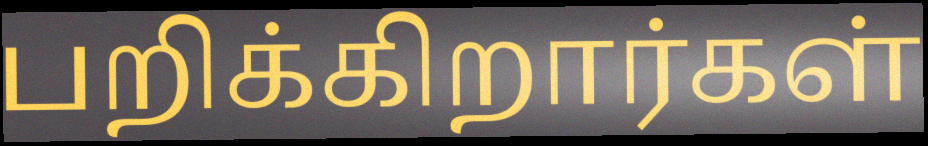
பறிக்கிறார்கள்